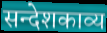
सन्देशकाव्य